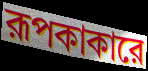
রূপকাকারে